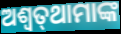
ଅଶ୍ୱତ୍‌ଥାମାଙ୍କ